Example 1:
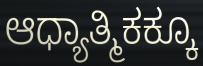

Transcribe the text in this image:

ಆಧ್ಯಾತ್ಮಿಕಕ್ಕೂ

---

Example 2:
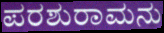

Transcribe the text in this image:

ಪರಶುರಾಮನು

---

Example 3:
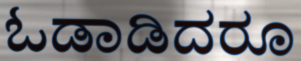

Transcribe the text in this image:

ಓಡಾಡಿದರೂ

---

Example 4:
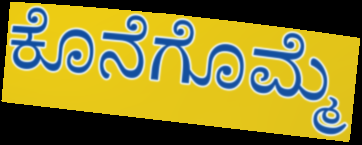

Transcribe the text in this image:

ಕೊನೆಗೊಮ್ಮೆ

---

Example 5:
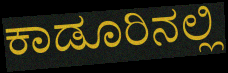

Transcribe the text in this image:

ಕಾಡೂರಿನಲ್ಲಿ